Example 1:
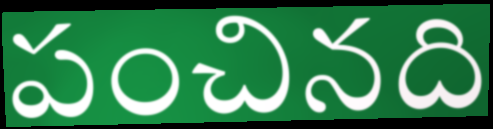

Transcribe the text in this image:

పంచినది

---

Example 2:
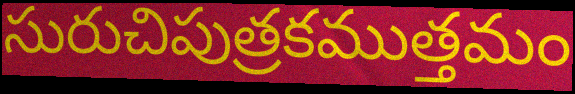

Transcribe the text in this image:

సురుచిపుత్రకముత్తమం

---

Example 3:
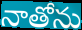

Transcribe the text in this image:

నాతోను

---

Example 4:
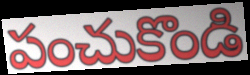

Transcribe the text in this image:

పంచుకొండి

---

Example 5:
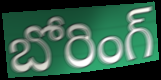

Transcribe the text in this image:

బోరింగ్